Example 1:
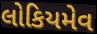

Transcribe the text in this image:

લોકિયમેવ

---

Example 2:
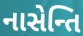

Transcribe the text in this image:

નાસેન્તિ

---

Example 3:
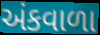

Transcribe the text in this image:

અંકવાળા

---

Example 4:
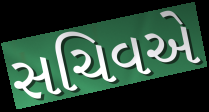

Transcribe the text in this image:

સચિવએ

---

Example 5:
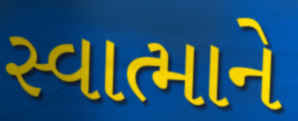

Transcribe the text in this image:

સ્વાત્માને